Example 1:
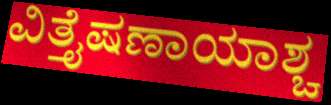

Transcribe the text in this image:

ವಿತ್ತೈಷಣಾಯಾಶ್ಚ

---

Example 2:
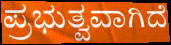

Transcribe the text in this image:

ಪ್ರಭುತ್ವವಾಗಿದೆ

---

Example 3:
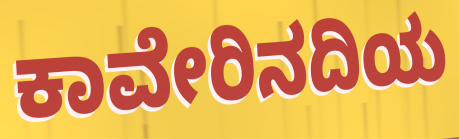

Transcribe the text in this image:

ಕಾವೇರಿನದಿಯ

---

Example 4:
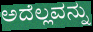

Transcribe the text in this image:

ಅದೆಲ್ಲವನ್ನು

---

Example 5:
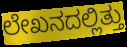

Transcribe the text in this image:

ಲೇಖನದಲ್ಲಿತ್ತು